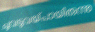
ചുവടുവയ്പായിരുന്നു